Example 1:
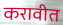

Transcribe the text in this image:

करावीत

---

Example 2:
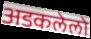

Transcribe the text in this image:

अडकलेलो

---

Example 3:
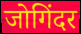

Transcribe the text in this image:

जोगिंदर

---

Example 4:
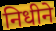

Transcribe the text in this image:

निधीने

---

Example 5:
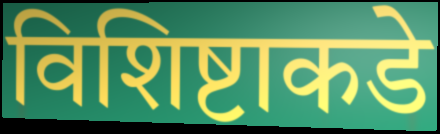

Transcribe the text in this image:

विशिष्टाकडे